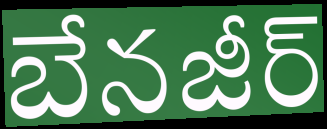
బేనజీర్